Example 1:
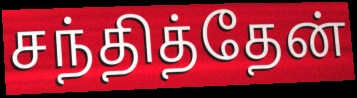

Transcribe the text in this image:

சந்தித்தேன்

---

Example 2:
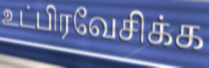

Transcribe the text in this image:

உட்பிரவேசிக்க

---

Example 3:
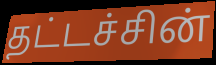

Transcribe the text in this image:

தட்டச்சின்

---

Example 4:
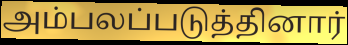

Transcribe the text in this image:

அம்பலப்படுத்தினார்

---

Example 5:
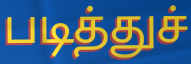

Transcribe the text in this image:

படித்துச்